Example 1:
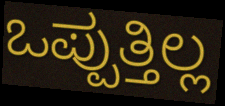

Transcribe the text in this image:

ಒಪ್ಪುತ್ತಿಲ್ಲ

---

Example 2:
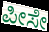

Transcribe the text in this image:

ಪೀಸೇ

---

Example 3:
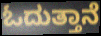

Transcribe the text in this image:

ಓದುತ್ತಾನೆ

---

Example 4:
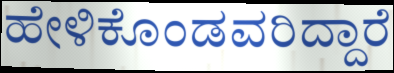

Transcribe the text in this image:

ಹೇಳಿಕೊಂಡವರಿದ್ದಾರೆ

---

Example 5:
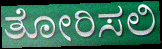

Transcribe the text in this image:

ತೋರಿಸಲಿ